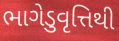
ભાગેડુવૃત્તિથી